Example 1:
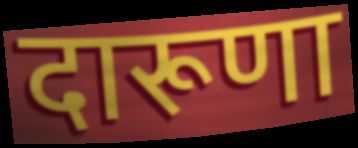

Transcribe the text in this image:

दारूणा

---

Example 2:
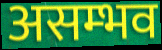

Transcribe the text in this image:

असम्‍भव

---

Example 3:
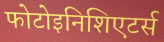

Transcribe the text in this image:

फोटोइनिशिएटर्स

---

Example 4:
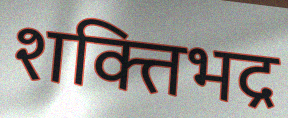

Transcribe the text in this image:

शक्तिभद्र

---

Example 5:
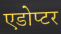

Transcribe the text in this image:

एडोप्टर